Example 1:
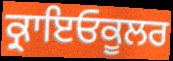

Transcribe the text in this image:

ਕ੍ਰਾਇਓਕੂਲਰ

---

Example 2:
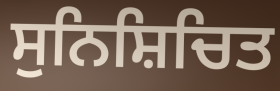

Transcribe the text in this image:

ਸੁਨਿਸ਼ਿਚਿਤ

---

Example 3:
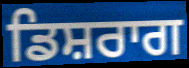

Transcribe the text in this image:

ਡਿਸ਼ਰਾਗ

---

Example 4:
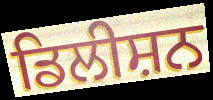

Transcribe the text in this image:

ਡਿਲੀਸ਼ਨ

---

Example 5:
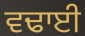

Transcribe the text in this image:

ਵਢਾਈ